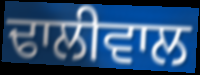
ਢਾਲੀਵਾਲ